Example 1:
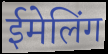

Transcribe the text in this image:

ईमेलिंग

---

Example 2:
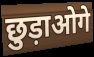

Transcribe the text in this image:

छुड़ाओगे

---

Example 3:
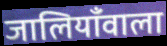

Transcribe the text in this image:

जालियाँवाला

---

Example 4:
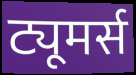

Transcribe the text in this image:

ट्यूमर्स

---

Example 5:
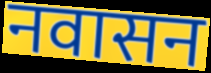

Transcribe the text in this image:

नवासन